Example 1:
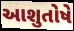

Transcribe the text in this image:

આશુતોષે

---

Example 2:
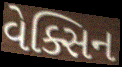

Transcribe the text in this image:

વેક્સિન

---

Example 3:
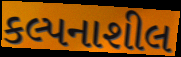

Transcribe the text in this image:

કલ્પનાશીલ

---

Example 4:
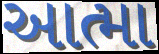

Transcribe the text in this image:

આત્મા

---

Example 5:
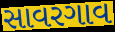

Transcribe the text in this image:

સાવરગાવ